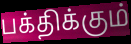
பக்திக்கும்